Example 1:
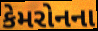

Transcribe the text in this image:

કેમરોનના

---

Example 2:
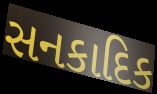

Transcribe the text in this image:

સનકાદિક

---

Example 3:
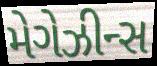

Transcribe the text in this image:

મેગેઝીન્સ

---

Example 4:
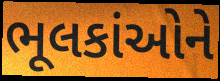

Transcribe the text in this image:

ભૂલકાંઓને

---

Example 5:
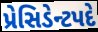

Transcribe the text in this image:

પ્રેસિડેન્ટપદે